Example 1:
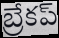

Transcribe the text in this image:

బ్రేకప్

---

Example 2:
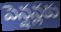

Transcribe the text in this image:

పెన్షన్లకు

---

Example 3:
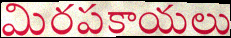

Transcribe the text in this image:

మిరపకాయలు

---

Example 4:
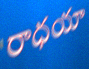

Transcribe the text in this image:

రాధయా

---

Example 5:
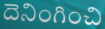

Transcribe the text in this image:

దెనింగించి